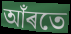
আঁৰতে